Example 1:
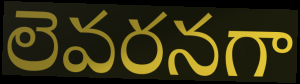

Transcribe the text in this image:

లెవరనగా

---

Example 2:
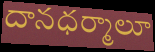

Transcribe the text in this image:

దానధర్మాలూ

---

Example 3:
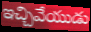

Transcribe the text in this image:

ఇచ్చివేయుడు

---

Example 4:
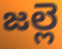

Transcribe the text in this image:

జల్లె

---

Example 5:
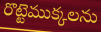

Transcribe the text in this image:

రొట్టెముక్కలను